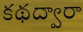
కథద్వారా